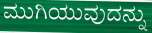
ಮುಗಿಯುವುದನ್ನು